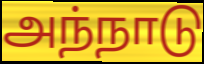
அந்நாடு